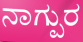
ನಾಗ್ಪುರ